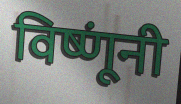
विष्णूंनी